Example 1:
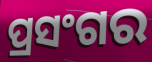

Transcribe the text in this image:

ପ୍ରସଂଗର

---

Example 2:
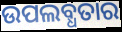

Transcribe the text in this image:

ଉପଲବ୍ଧତାର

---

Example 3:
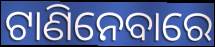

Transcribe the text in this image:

ଟାଣିନେବାରେ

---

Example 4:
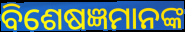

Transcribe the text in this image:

ବିଶେଷଜ୍ଞମାନଙ୍କ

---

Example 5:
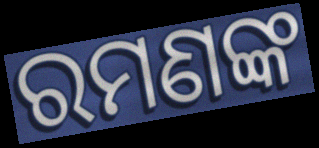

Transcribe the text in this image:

ରମଣଙ୍କ